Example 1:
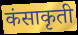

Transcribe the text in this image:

कंसाकृती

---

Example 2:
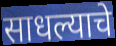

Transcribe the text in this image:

साधल्याचे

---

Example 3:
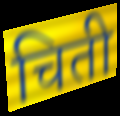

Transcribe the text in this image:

चिती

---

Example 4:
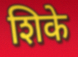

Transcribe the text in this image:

शिके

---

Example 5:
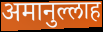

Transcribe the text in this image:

अमानुल्लाह